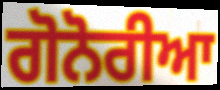
ਗੋਨੋਰੀਆ